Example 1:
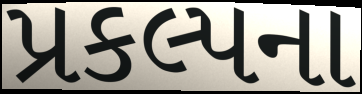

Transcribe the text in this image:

પ્રકલ્પના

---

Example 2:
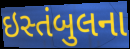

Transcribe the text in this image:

ઇસ્તંબુલના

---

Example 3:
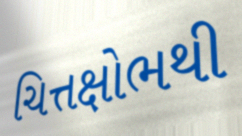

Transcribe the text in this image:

ચિત્તક્ષોભથી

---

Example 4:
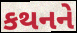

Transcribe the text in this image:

કથનને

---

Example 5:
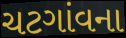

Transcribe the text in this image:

ચટગાંવના